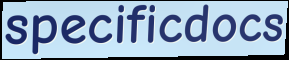
specificdocs